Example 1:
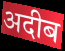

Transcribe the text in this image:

अदीब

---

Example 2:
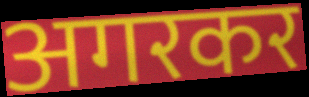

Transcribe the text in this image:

अगरकर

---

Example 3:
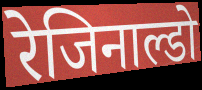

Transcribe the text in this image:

रेजिनाल्डो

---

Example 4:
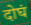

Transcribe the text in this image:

दोघं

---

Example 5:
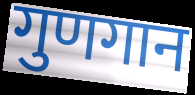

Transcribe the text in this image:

गुणगान